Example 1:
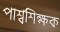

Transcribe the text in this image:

পার্শ্বশিক্ষক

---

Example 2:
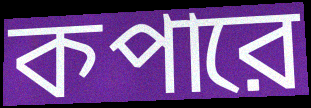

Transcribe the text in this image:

কপারে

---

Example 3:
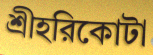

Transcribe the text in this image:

শ্রীহরিকোটা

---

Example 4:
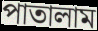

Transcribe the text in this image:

পাতালাম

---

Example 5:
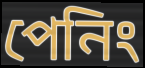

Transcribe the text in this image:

পেনিং